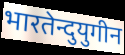
भारतेन्दुयुगीन